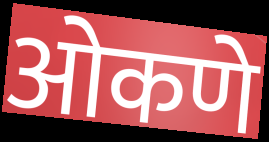
ओकणे